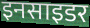
इनसाइडर